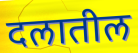
दलातील